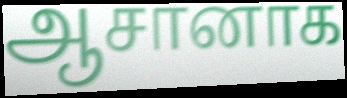
ஆசானாக